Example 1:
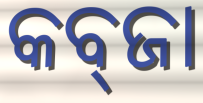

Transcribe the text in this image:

କବ୍‌ଜା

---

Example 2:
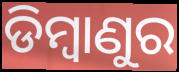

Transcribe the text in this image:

ଡିମ୍ବାଣୁର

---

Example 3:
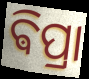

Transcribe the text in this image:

ଵିପ୍ରା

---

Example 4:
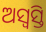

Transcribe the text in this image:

ଅସ୍ୱସ୍ତି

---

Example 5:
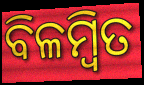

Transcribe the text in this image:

ବିଳମ୍ବିତ